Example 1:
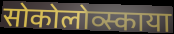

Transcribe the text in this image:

सोकोलोव्स्काया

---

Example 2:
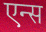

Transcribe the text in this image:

एन्स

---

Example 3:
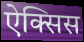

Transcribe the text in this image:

ऐक्सिस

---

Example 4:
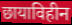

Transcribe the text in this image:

छायाविहीन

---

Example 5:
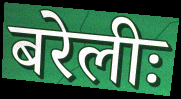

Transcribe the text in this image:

बरेलीः